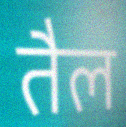
तैल